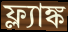
ফ্ল্যাঙ্ক